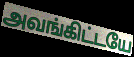
அவங்கிட்டயே